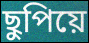
ছুপিয়ে